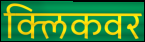
क्लिकवर